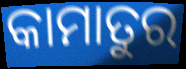
କାମାତୁର